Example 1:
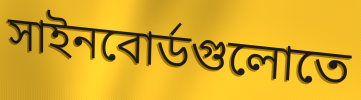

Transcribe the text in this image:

সাইনবোর্ডগুলোতে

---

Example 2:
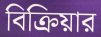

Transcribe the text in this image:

বিক্রিয়ার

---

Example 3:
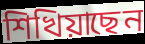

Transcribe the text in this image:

শিখিয়াছেন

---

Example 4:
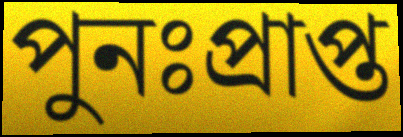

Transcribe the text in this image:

পুনঃপ্রাপ্ত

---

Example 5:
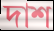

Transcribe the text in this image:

দাশ